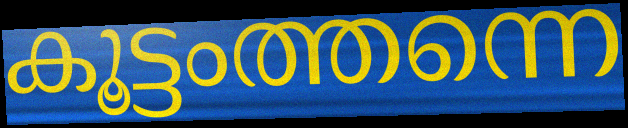
കൂട്ടംത്തന്നെ